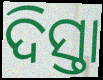
ଦିସ୍ତା